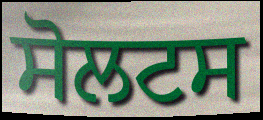
ਸੋਲਟਸ